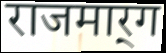
राजमार्ग